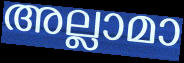
അല്ലാമാ